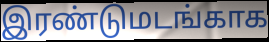
இரண்டுமடங்காக